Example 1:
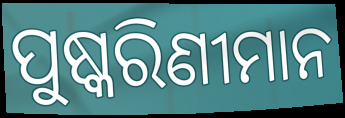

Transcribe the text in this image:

ପୁଷ୍କରିଣୀମାନ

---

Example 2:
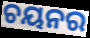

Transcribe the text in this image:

ଚୟନର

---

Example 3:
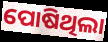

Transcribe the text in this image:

ପୋଷିଥିଲା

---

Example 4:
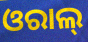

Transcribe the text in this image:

ଓରାଲ୍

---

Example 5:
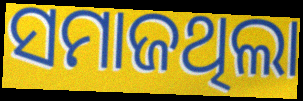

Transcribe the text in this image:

ସମାଜଥିଲା